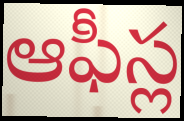
ఆఫీస్ల